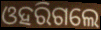
ଓହରିଗଲେ